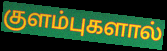
குளம்புகளால்